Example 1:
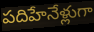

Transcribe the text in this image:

పదిహేనేళ్లుగా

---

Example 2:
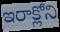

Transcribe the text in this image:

ఇరాక్లోని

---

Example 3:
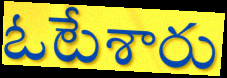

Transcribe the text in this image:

ఓటేశారు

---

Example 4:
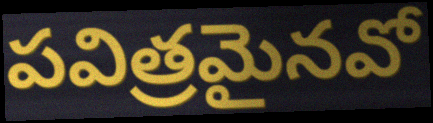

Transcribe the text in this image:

పవిత్రమైనవో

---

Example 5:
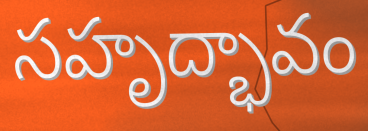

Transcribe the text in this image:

సహృద్భావం